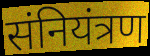
संनियंत्रण